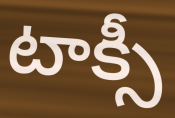
టాక్సీ